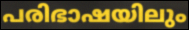
പരിഭാഷയിലും